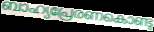
ബാഹ്യപ്രേരണകൊണ്ടു